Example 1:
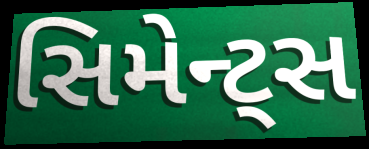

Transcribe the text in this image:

સિમેન્ટ્સ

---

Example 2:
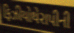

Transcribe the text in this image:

ફિઝીયોથેરાપીની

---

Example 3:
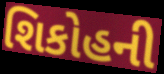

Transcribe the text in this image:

શિકોહની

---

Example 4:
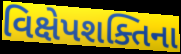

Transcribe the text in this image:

વિક્ષેપશક્તિના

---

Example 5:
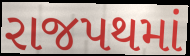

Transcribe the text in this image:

રાજપથમાં